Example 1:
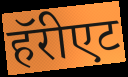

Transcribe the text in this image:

हॅरीएट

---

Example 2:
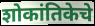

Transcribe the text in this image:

शोकांतिकेचे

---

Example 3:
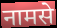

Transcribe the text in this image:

नामसे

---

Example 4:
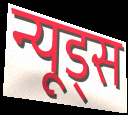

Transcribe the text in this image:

न्यूड्स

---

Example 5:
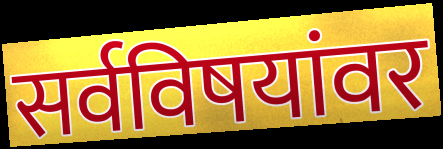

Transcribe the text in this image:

सर्वविषयांवर